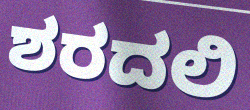
ಶರದಲಿ